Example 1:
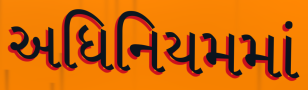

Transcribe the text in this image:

અધિનિયમમાં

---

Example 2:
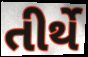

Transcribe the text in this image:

તીર્થે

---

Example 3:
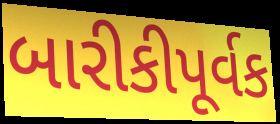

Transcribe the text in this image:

બારીકીપૂર્વક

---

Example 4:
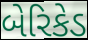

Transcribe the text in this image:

બેરિકેડ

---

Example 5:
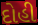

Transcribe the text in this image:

દોહી